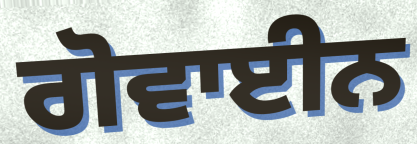
ਗੋਵਾਈਨ